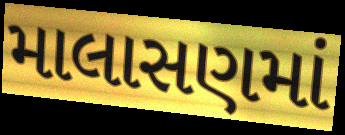
માલાસણમાં